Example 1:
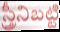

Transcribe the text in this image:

స్త్రీనిబట్టి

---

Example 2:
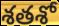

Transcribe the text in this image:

శతశో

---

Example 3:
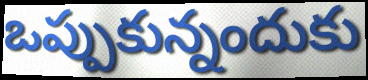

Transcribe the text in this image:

ఒప్పుకున్నందుకు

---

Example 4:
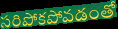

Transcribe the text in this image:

సరిపోకపోవడంతో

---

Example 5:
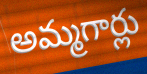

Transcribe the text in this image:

అమ్మగార్లు